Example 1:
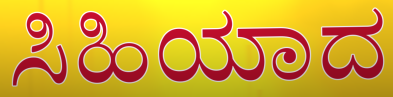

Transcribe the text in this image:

ಸಿಹಿಯಾದ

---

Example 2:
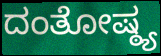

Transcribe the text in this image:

ದಂತೋಷ್ಠ್ಯ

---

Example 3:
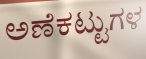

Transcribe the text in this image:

ಅಣೆಕಟ್ಟುಗಳ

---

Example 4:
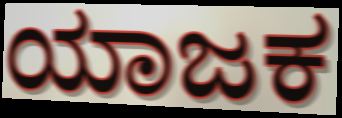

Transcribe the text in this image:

ಯಾಜಕ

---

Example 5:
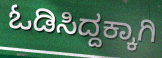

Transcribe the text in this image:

ಓಡಿಸಿದ್ದಕ್ಕಾಗಿ